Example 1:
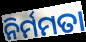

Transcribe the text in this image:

ନିର୍ମମତା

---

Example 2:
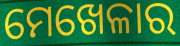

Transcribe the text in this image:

ମେଖେଳାର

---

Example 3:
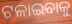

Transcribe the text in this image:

ଟଳାଇବାକୁ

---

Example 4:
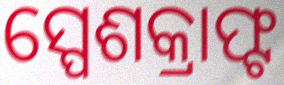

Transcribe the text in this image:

ସ୍ପେଶକ୍ରାଫ୍ଟ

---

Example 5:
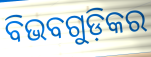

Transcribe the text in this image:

ବିଭବଗୁଡ଼ିକର